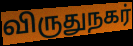
விருதுநகர்